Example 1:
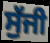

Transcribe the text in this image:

ਸੁੱਜੀ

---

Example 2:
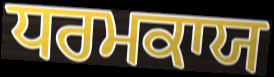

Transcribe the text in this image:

ਧਰਮਕਾਯ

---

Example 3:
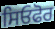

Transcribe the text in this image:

ਸਿਓਫੋਰ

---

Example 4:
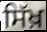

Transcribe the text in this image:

ਸਿੱਖ਼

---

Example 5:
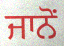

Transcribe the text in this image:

ਜਾਨੋਂ